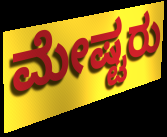
ಮೇಷ್ಟರು